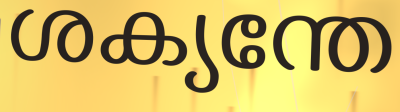
ശക്യന്തേ